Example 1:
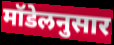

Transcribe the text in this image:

मॉडेलनुसार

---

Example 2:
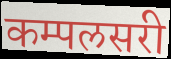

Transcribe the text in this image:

कम्पलसरी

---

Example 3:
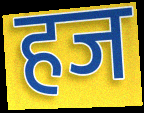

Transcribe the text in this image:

हज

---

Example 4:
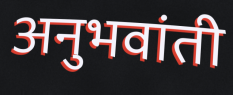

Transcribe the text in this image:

अनुभवांती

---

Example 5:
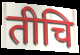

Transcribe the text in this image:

तीचि